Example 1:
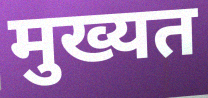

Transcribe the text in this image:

मुख्यत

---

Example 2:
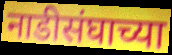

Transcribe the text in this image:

नाडीसंघाच्या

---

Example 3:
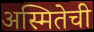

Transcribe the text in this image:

अस्मितेची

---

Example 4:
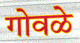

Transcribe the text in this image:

गोवळे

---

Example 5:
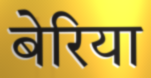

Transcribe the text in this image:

बेरिया